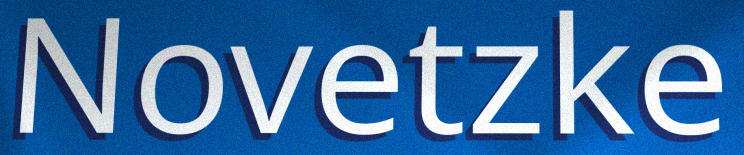
Novetzke